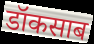
डॉकसाब